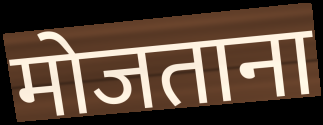
मोजताना